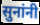
सुनांनी